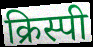
क्रिस्पी